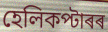
হেলিকপ্টাৰৰ